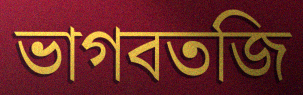
ভাগবতজি